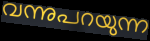
വന്നുപറയുന്ന